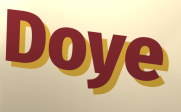
Doye